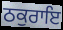
ਠਕੁਰਾਇ